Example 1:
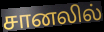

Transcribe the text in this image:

சானலில்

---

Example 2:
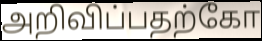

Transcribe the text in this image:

அறிவிப்பதற்கோ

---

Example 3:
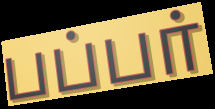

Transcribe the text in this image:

பப்பர்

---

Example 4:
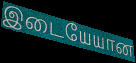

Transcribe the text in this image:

இடையேயான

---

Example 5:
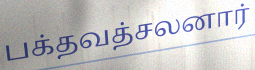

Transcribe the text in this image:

பக்தவத்சலனார்